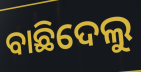
ବାଛିଦେଲୁ